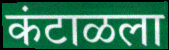
कंटाळला